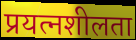
प्रयत्नशीलता